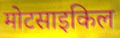
मोटसाइकिल